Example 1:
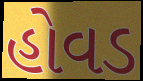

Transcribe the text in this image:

હોવડ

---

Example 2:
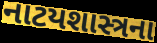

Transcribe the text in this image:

નાટયશાસ્ત્રના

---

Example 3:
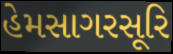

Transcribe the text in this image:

હેમસાગરસૂરિ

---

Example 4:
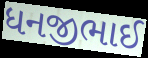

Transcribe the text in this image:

ધનજીભાઈ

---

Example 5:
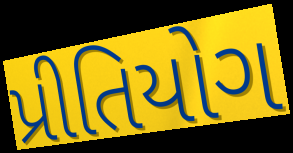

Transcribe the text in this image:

પ્રીતિયોગ